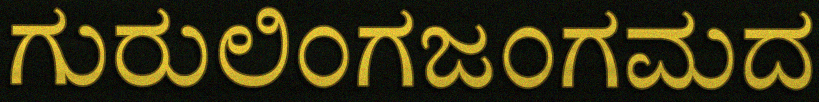
ಗುರುಲಿಂಗಜಂಗಮದ